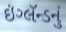
ઇંગ્લૅન્ડનું